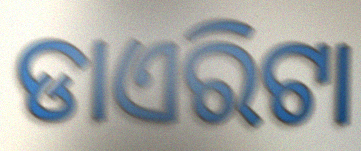
ଡାଏରିଟା